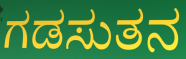
ಗಡಸುತನ